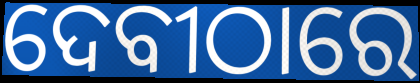
ଦେବୀଠାରେ